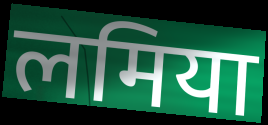
लमिया